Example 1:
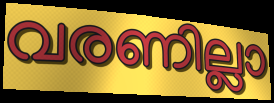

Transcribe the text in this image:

വരണില്ലാ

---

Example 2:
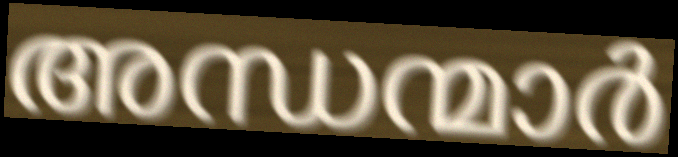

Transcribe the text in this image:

അന്ധന്മാർ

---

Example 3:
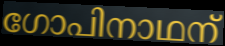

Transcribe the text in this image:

ഗോപിനാഥന്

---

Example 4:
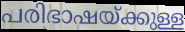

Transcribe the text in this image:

പരിഭാഷയ്ക്കുള്ള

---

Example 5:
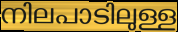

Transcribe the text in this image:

നിലപാടിലുള്ള